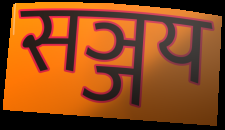
सञ्जय